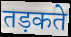
तड़कते